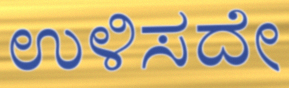
ಉಳಿಸದೇ